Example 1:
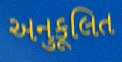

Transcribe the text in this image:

અનુકૂલિત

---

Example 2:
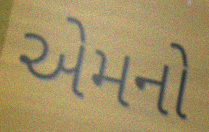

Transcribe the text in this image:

એમનો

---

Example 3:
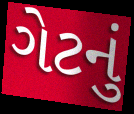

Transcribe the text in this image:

ગેટનું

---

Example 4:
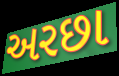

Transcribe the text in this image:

અરછા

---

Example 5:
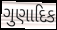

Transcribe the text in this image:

ગુણાદિક